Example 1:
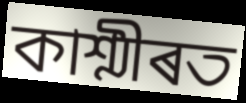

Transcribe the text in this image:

কাশ্মীৰত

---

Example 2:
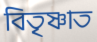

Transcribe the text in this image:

বিতৃষ্ণাত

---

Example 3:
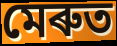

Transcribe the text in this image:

মেৰুত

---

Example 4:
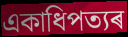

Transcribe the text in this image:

একাধিপত্যৰ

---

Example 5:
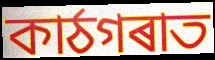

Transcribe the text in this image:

কাঠগৰাত